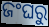
ଜଂଘରୁ